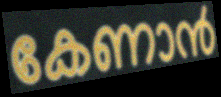
കേണാൻ